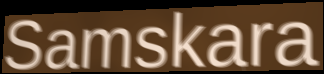
Samskara